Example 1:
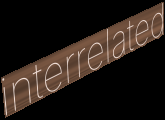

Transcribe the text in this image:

interrelated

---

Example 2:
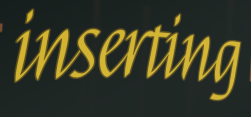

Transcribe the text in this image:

inserting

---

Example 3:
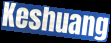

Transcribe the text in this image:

Keshuang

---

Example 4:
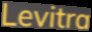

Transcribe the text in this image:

Levitra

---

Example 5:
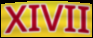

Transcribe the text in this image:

XIVII